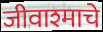
जीवाश्माचे